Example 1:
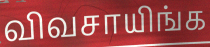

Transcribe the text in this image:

விவசாயிங்க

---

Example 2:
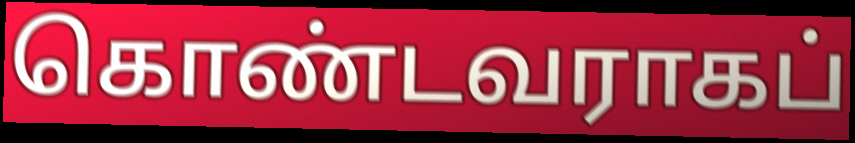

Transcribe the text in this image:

கொண்டவராகப்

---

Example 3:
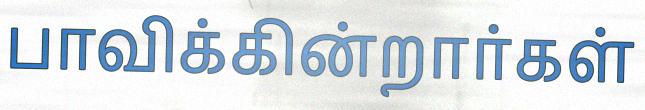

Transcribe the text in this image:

பாவிக்கின்றார்கள்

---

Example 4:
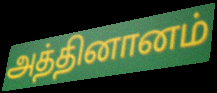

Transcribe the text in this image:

அத்தினானம்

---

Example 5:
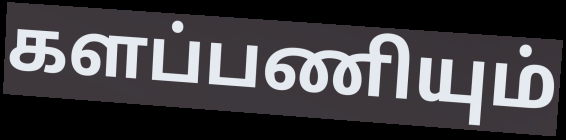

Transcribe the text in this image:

களப்பணியும்